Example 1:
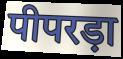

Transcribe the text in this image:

पीपरड़ा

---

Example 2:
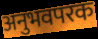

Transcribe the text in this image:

अनुभवपरक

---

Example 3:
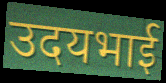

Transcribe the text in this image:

उदयभाई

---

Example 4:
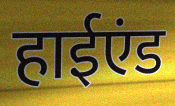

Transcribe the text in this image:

हाईएंड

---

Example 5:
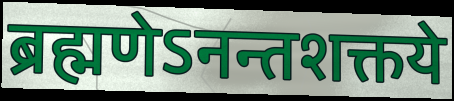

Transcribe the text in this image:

ब्रह्मणेऽनन्तशक्तये